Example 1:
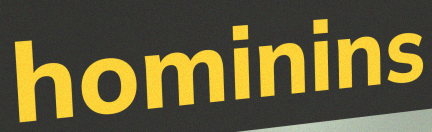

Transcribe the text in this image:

hominins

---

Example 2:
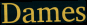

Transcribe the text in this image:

Dames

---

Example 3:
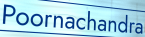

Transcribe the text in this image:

Poornachandra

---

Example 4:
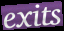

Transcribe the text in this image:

exits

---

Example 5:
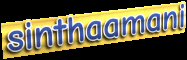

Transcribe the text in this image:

sinthaamani